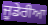
ਜੂਡੇਰੀਆ